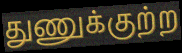
துணுக்குற்ற